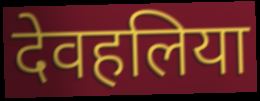
देवहलिया